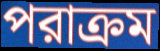
পরাক্রম